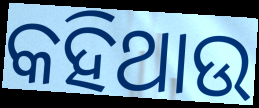
କହିଥାଉ